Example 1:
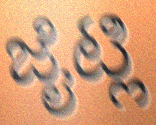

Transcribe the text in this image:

ಜೈಟ್ಲಿ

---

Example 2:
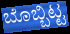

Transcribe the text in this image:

ಬೊಬ್ಬಿಟ್ಟ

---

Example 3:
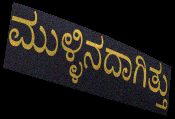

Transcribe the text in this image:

ಮುಳ್ಳಿನದಾಗಿತ್ತು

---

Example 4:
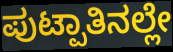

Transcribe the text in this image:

ಪುಟ್ಪಾತಿನಲ್ಲೇ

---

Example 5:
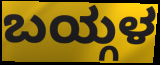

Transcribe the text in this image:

ಬಯ್ಗಳ